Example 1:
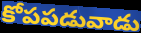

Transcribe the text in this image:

కోపపడువాడు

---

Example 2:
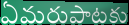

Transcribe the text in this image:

ఏమరుపాటకు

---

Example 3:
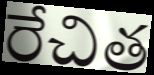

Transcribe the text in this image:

రేచిత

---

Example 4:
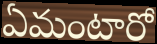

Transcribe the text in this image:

ఏమంటారో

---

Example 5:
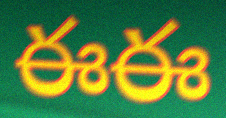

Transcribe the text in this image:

ఈఈ